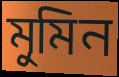
মুমিন